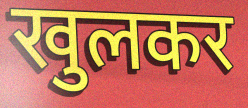
खुलकर